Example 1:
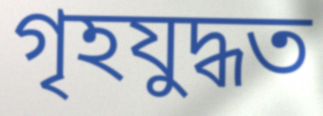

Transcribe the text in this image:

গৃহযুদ্ধত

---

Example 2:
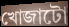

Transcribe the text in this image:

খোজাটো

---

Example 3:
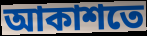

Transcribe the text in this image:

আকাশতে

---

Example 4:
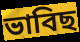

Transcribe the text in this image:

ভাবিছ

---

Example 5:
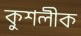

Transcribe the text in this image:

কুশলীক